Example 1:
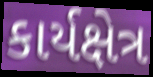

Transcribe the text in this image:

કાર્યક્ષેત્ર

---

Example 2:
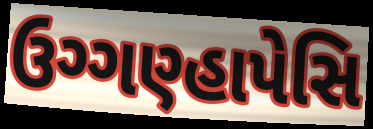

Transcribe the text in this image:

ઉગ્ગણ્હાપેસિ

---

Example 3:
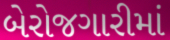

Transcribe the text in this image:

બેરોજગારીમાં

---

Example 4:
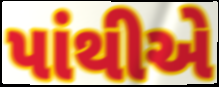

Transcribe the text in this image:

પાંથીએ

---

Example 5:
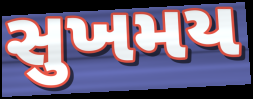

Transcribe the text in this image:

સુખમય